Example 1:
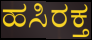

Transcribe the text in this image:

ಹಸಿರಕ್ತ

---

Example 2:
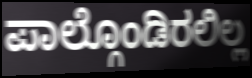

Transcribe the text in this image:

ಪಾಲ್ಗೊಂಡಿರಲಿಲ್ಲ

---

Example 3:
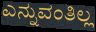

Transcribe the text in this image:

ಎನ್ನುವಂತಿಲ್ಲ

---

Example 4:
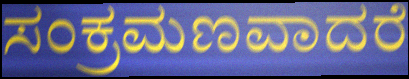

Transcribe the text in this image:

ಸಂಕ್ರಮಣವಾದರೆ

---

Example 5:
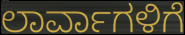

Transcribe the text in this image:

ಲಾರ್ವಾಗಳಿಗೆ